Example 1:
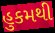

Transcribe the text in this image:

હુકમથી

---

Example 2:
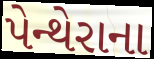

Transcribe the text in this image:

પેન્થેરાના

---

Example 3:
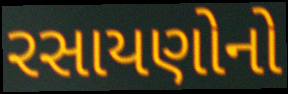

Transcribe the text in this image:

રસાયણોનો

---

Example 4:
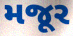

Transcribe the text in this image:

મજૂર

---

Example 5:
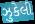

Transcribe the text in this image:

ઝુકેલી